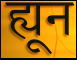
ह्यून